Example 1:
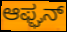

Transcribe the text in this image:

ಆಫ್ಘನ್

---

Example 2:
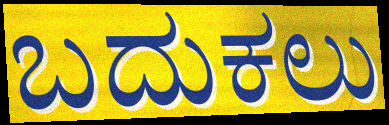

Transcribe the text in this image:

ಬದುಕಲು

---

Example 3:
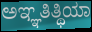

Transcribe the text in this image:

ಅಞ್ಞತಿತ್ಥಿಯಾ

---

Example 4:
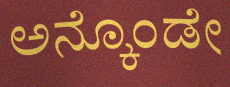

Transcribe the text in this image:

ಅನ್ಕೊಂಡೇ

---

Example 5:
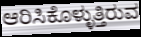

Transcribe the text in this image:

ಆರಿಸಿಕೊಳ್ಳುತ್ತಿರುವ